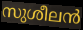
സുശീലൻ